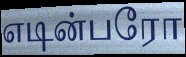
எடின்பரோ